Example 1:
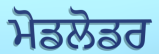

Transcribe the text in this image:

ਮੋਡਲੋਡਰ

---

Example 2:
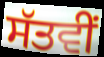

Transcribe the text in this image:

ਸੱਤਵੀਂ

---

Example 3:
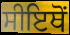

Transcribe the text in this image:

ਸੀਇਥੋਂ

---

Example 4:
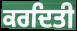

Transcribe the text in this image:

ਕਰਦਿਤੀ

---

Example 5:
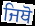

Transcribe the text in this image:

ਜਿਥੋ